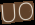
UO